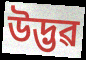
উদ্ভৱ